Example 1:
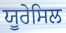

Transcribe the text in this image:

ਯੂਰੇਸਿਲ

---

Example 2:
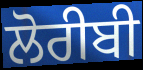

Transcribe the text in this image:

ਲੋਰੀਬੀ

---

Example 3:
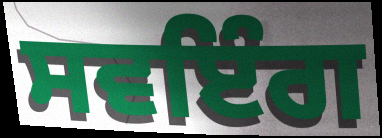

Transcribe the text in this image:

ਸਵਇੰਗ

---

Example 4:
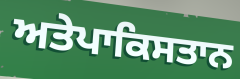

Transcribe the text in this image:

ਅਤੇਪਾਕਿਸਤਾਨ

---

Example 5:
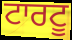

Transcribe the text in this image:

ਟਾਰਟੂ